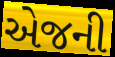
એજની